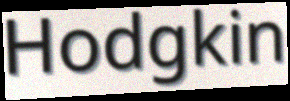
Hodgkin